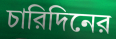
চারিদিনের